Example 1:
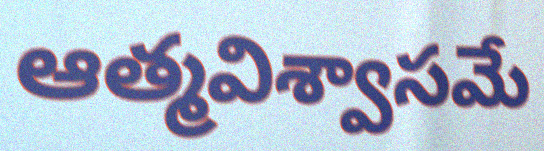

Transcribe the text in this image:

ఆత్మవిశ్వాసమే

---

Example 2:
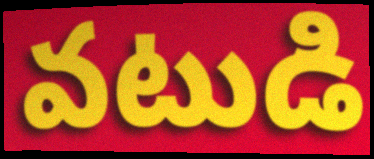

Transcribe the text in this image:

వటుడి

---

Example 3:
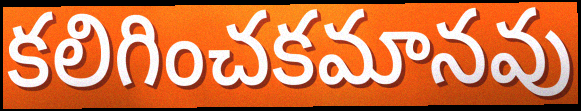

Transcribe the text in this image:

కలిగించకమానవు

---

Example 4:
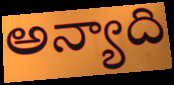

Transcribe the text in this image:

అన్యాది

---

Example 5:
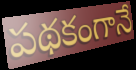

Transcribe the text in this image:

పథకంగానే